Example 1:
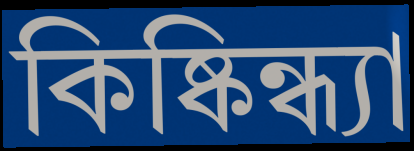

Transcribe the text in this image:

কিষ্কিন্ধ্যা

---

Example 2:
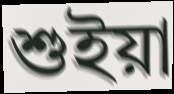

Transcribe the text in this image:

শুইয়া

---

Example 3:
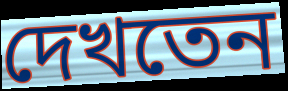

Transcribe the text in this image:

দেখতেন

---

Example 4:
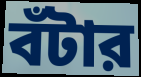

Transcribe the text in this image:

বঁটার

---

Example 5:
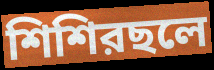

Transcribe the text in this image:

শিশিরছলে